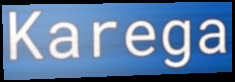
Karega